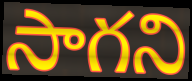
సాగని